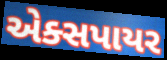
એક્સપાયર